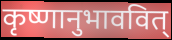
कृष्णानुभाववित्